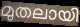
മുതലായി